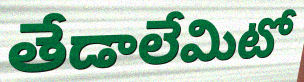
తేడాలేమిటో